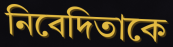
নিবেদিতাকে